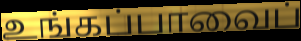
உங்கப்பாவைப்